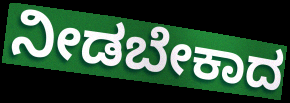
ನೀಡಬೇಕಾದ